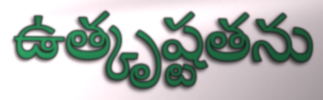
ఉత్కృష్టతను